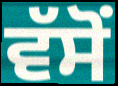
ਵੱਸੋਂ